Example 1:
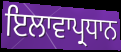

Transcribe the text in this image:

ਇਲਾਵਾਪ੍ਰਧਾਨ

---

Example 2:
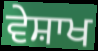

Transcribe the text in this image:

ਵੇਸ਼ਾਖ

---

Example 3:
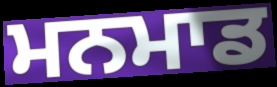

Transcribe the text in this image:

ਮਨਮਾਡ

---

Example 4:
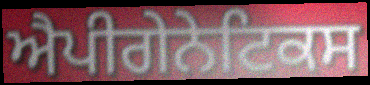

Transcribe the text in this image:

ਐਪੀਗੇਨੇਟਿਕਸ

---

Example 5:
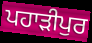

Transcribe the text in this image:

ਪਹਾੜੀਪੁਰ